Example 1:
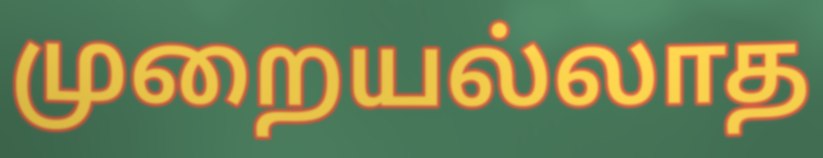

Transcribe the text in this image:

முறையல்லாத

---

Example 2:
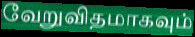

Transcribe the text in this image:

வேறுவிதமாகவும்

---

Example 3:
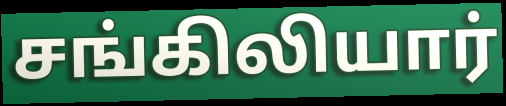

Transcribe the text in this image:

சங்கிலியார்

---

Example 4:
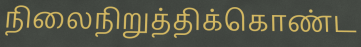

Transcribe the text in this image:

நிலைநிறுத்திக்கொண்ட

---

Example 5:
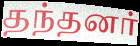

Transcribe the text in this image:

தந்தனர்